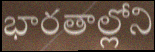
భారతాల్లోని